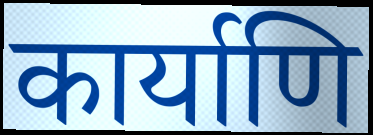
कार्याणि